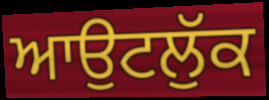
ਆਉਟਲੁੱਕ